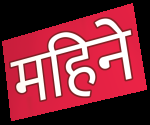
महिने